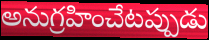
అనుగ్రహించేటప్పుడు